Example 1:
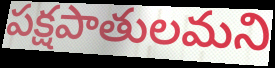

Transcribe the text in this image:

పక్షపాతులమని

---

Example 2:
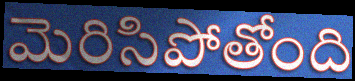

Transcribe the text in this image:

మెరిసిపోతోంది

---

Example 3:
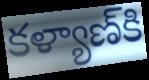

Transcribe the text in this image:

కళ్యాణ్‍కి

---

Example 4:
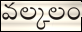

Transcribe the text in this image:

వల్కలం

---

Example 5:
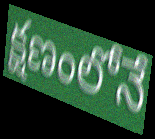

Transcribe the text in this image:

క్షణంలోనే